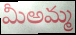
మీఅమ్మ